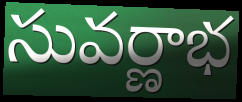
సువర్ణాభ